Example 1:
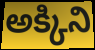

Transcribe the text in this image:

అక్కిని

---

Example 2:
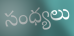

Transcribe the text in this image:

సంధ్యలు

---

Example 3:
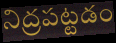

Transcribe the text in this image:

నిద్రపట్టడం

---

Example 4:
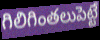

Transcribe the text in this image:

గిలిగింతలుపెట్టే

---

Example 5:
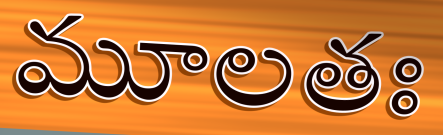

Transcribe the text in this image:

మూలతః